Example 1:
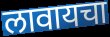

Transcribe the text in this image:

लावायचा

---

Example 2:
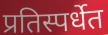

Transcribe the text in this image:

प्रतिस्पर्धेत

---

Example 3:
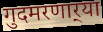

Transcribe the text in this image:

गुदमरणार्या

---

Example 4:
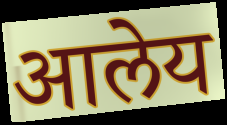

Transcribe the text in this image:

आलेय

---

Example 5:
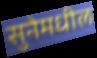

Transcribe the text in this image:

सुनेमधील